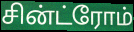
சின்ட்ரோம்